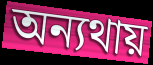
অন্যথায়